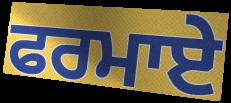
ਫਰਮਾਏ